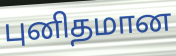
புனிதமான